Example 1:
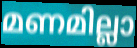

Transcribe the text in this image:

മണമില്ലാ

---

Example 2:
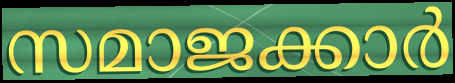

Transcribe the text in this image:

സമാജക്കാർ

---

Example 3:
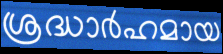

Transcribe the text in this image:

ശ്രദ്ധാർഹമായ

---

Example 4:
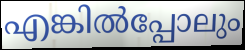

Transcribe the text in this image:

എങ്കിൽപ്പോലും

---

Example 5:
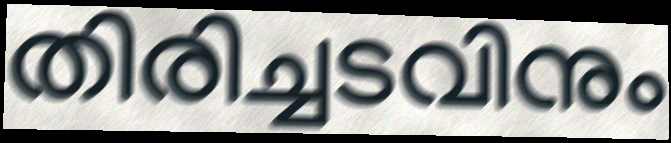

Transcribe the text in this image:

തിരിച്ചടവിനും